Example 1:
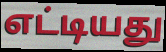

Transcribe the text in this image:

எட்டியது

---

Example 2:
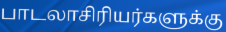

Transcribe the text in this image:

பாடலாசிரியர்களுக்கு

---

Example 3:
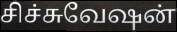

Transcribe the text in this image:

சிச்சுவேஷன்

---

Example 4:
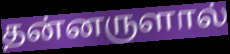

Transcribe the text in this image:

தன்னருளால்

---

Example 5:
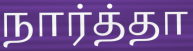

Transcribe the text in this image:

நார்த்தா